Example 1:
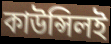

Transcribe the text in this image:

কাউন্সিলই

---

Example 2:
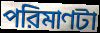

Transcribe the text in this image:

পরিমাণটা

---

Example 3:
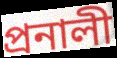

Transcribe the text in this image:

প্রনালী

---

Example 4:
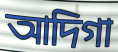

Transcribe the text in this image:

আদিগা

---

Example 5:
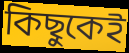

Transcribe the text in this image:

কিছুকেই